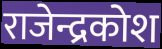
राजेन्द्रकोश